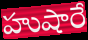
హుషారే